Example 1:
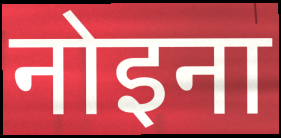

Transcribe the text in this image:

नोइना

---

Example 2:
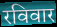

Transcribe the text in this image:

रविवार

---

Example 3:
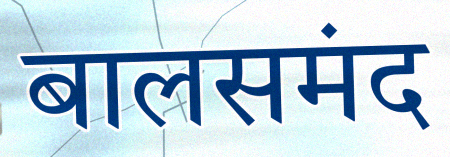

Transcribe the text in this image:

बालसमंद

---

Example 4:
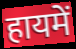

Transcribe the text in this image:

हायमें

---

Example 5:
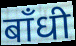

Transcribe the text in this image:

बाँधी